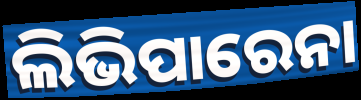
ଲିଭିପାରେନା